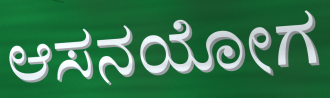
ಆಸನಯೋಗ